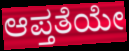
ಆಪ್ತತೆಯೇ